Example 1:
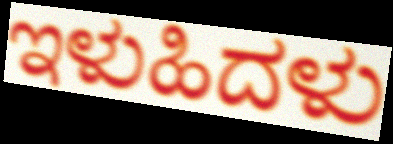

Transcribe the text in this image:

ಇಳುಹಿದಳು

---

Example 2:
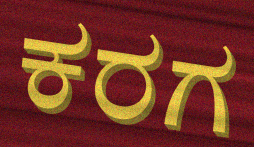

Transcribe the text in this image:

ಕರಗ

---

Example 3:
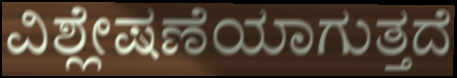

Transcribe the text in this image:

ವಿಶ್ಲೇಷಣೆಯಾಗುತ್ತದೆ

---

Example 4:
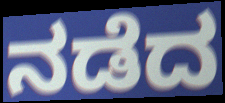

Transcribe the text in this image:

ನಡೆದ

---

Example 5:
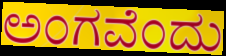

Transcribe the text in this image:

ಅಂಗವೆಂದು